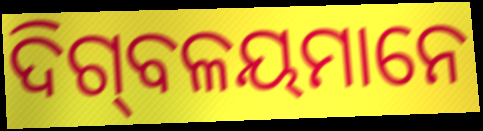
ଦିଗ୍‌ବଳୟମାନେ